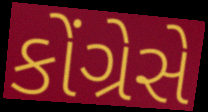
કોંગ્રેસે